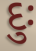
દુઃ